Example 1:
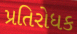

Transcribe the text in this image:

પ્રતિરોધક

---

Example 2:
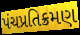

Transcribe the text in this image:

પંચપ્રતિક્રમણ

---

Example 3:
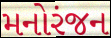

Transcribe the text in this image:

મનોરંજન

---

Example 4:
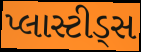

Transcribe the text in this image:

પ્લાસ્ટીડ્સ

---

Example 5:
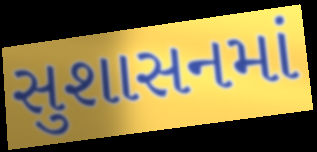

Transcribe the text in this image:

સુશાસનમાં